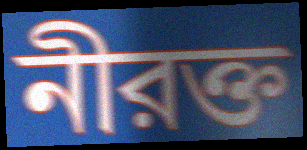
নীরক্ত